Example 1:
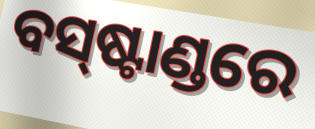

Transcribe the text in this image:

ବସ୍‍ଷ୍ଟାଣ୍ଡରେ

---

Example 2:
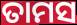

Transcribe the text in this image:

ତାମସ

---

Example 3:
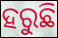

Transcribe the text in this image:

ହରୁଛି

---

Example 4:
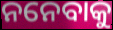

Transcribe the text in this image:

ନନେବାକୁ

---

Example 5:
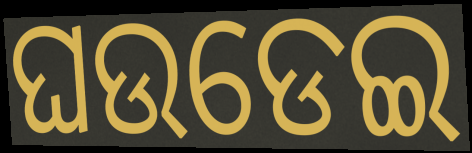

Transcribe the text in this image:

ଘଉଡେଇ